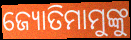
ଜ୍ୟୋତିମାମୁଙ୍କୁ